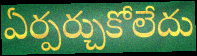
ఏర్పర్చుకోలేదు